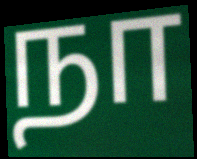
நா